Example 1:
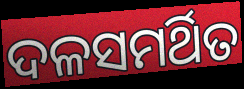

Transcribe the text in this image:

ଦଳସମର୍ଥିତ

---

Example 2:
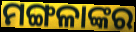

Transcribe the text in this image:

ମଙ୍ଗଳାଙ୍କର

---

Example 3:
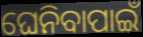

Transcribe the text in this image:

ଘେନିବାପାଇଁ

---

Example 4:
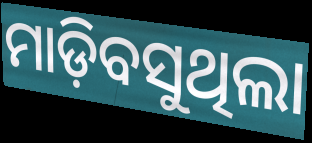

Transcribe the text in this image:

ମାଡ଼ିବସୁଥିଲା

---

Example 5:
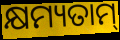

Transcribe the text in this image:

କ୍ଷମ୍ୟତାମ୍